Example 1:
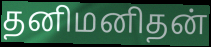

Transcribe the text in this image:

தனிமனிதன்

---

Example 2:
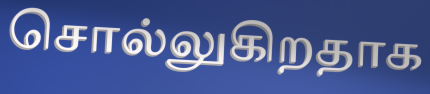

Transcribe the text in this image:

சொல்லுகிறதாக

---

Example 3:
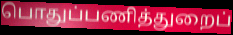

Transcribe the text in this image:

பொதுப்பணித்துறைப்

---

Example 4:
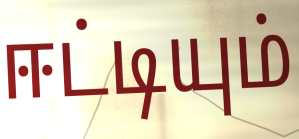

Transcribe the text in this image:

ஈட்டியும்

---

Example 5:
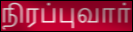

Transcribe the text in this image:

நிரப்புவார்